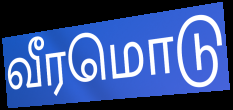
வீரமொடு